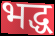
भद्ध